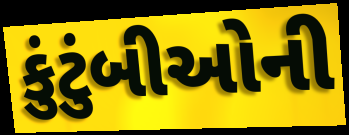
કુંટુંબીઓની